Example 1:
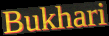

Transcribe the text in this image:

Bukhari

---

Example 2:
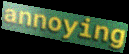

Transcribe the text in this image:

annoying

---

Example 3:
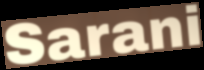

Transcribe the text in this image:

Sarani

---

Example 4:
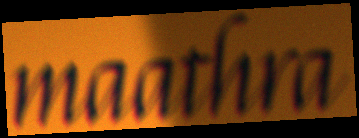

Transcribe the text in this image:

maathra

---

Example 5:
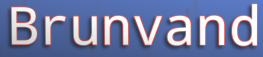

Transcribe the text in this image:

Brunvand